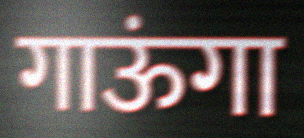
गाऊंगा